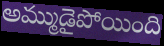
అమ్ముడైపోయింది